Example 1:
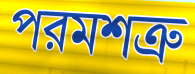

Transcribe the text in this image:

পরমশত্রু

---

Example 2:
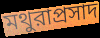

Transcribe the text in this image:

মথুরাপ্রসাদ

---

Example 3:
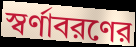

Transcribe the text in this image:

স্বর্ণাবরণের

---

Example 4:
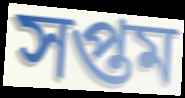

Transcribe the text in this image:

সপ্তম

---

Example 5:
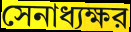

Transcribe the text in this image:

সেনাধ্যক্ষর